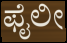
ಫೈಲೀ